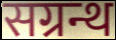
सग्रन्थ